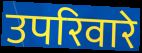
उपरिवारे